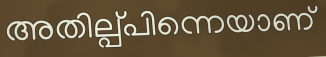
അതില്പ്പിന്നെയാണ്